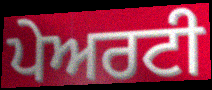
ਪੇਅਰਟੀ